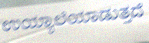
ಉಯ್ಯಾಲೆಯಾಡುತ್ತದೆ